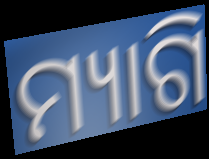
ମ୍ୟାଗି